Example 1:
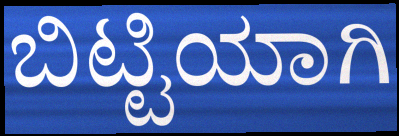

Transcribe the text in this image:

ಬಿಟ್ಟಿಯಾಗಿ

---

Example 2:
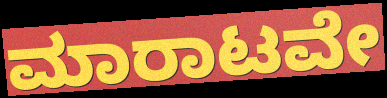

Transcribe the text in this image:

ಮಾರಾಟವೇ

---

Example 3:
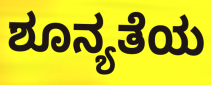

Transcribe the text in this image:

ಶೂನ್ಯತೆಯ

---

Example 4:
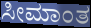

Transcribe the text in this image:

ಸೀಮಾಂತ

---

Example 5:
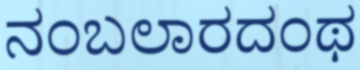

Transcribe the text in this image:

ನಂಬಲಾರದಂಥ